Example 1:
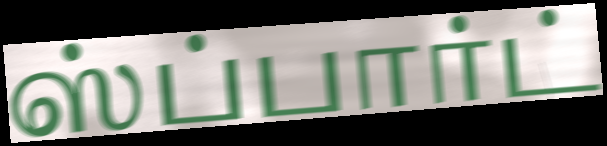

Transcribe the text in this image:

ஸ்ப்பார்ட்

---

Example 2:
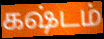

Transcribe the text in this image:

கஷ்டம்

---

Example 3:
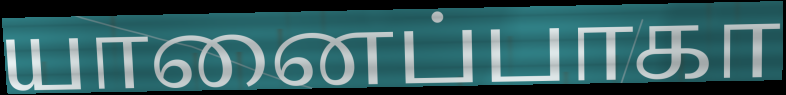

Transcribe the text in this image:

யானைப்பாகா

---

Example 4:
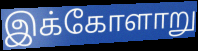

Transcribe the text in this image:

இக்கோளாறு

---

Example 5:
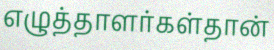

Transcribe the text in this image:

எழுத்தாளர்கள்தான்